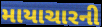
માયાચારની